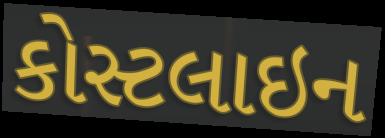
કોસ્ટલાઇન